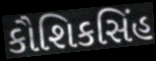
કૌશિકસિંહ